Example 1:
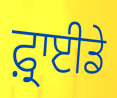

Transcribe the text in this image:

ਫ਼੍ਰਾਈਡੇ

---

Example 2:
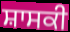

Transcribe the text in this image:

ਸ਼ਾਸਕੀ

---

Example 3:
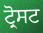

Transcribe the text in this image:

ਟ੍ਰੋਸਟ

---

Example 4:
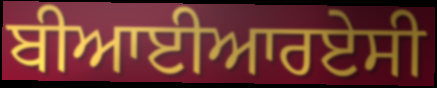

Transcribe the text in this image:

ਬੀਆਈਆਰਏਸੀ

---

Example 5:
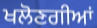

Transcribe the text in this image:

ਖਲੋਣਗੀਆਂ